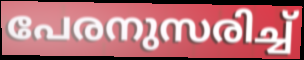
പേരനുസരിച്ച്